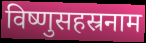
विष्णुसहस्रनाम